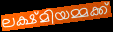
ലക്ഷ്മിയമ്മക്ക്